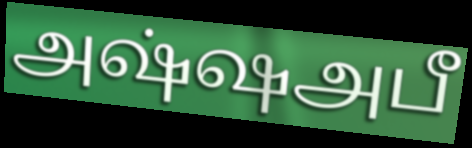
அஷ்ஷஅபீ